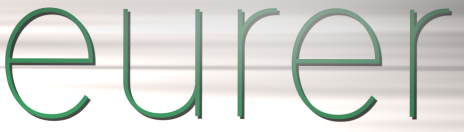
eurer